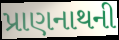
પ્રાણનાથની